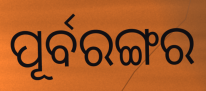
ପୂର୍ବରଙ୍ଗର